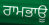
ਰਾਮਭਾਊ